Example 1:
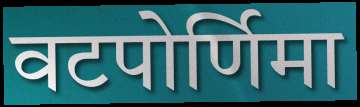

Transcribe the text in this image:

वटपोर्णिमा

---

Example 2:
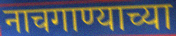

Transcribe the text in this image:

नाचगाण्याच्या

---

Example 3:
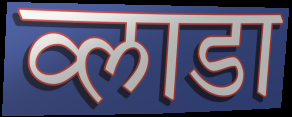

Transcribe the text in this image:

व्लाडा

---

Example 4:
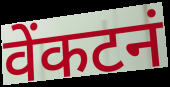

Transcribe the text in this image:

वेंकटनं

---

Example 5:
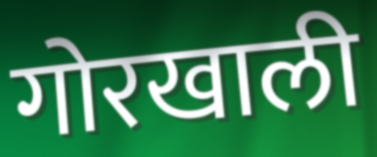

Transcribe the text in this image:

गोरखाली